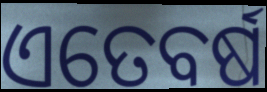
ଏତେବର୍ଷ